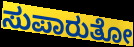
ಸುಪಾರುತೋ